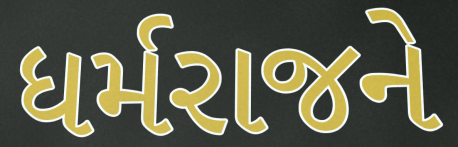
ધર્મરાજને